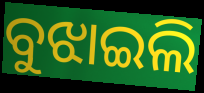
ବୁଝାଇଲି